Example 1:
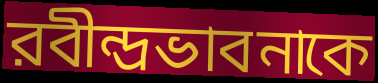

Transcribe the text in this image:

রবীন্দ্রভাবনাকে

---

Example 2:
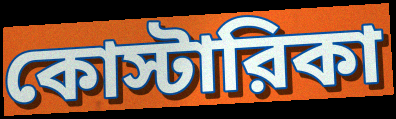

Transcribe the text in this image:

কোস্টারিকা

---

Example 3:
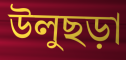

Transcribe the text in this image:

উলুছড়া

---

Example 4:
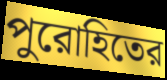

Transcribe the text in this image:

পুরোহিতের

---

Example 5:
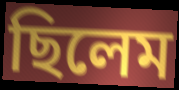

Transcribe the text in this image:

ছিলেম